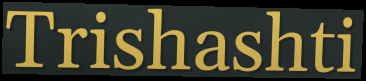
Trishashti